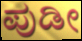
ಪುಡೀ